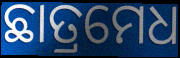
ଛାତ୍ରମେଧ